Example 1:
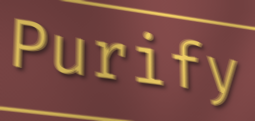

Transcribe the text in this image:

Purify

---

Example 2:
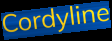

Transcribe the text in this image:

Cordyline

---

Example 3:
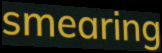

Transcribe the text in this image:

smearing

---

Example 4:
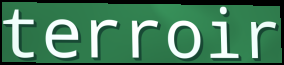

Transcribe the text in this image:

terroir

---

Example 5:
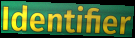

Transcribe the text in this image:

Identifier